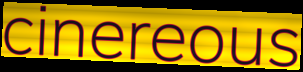
cinereous